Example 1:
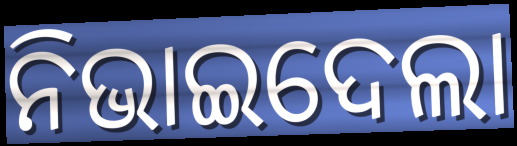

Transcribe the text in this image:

ନିଭାଇଦେଲା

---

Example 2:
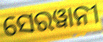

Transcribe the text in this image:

ସେରୱାନୀ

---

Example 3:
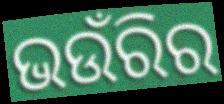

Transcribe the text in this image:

ଭଉଁରିର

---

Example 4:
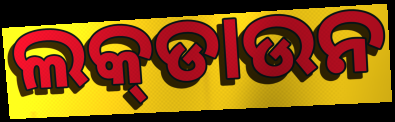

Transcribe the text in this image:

ଲକ୍‍ଡାଉନ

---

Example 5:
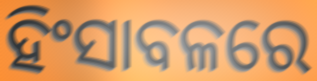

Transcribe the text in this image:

ହିଂସାବଳରେ